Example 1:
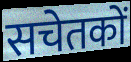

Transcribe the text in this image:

सचेतकों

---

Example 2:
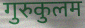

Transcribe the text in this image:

गुरुकुलम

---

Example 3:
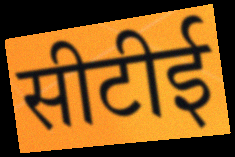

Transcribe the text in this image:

सीटीई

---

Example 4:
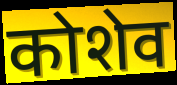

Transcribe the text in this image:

कोशेव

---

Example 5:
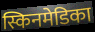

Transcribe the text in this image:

स्किनमेडिका